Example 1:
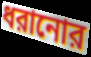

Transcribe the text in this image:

ধরানোর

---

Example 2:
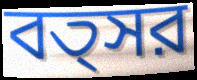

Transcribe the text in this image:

বত্সর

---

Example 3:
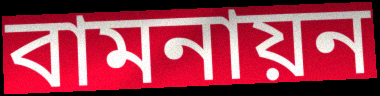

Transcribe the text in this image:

বামনায়ন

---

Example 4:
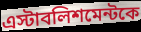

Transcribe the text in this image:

এস্টাবলিশমেন্টকে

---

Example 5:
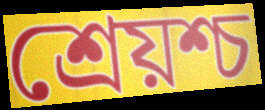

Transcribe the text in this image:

শ্রেয়শ্চ